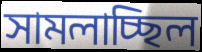
সামলাচ্ছিল